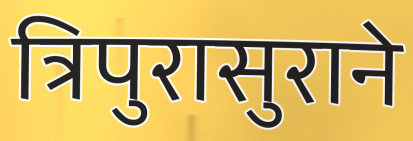
त्रिपुरासुराने